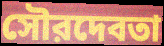
সৌরদেবতা